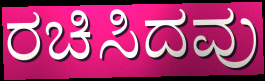
ರಚಿಸಿದವು